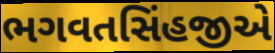
ભગવતસિંહજીએ